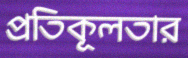
প্রতিকূলতার